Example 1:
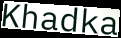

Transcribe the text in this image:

Khadka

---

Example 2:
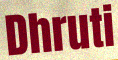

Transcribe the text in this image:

Dhruti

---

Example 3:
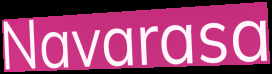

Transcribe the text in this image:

Navarasa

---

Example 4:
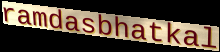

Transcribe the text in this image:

ramdasbhatkal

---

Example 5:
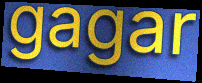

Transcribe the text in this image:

gagar